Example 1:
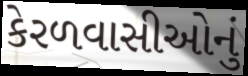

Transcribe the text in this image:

કેરળવાસીઓનું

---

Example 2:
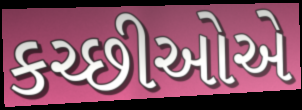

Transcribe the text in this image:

કચ્છીઓએ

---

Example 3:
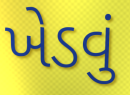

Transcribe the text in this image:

ખેડવું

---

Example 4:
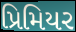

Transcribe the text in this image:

પ્રિમિયર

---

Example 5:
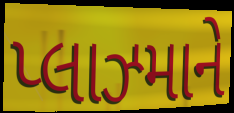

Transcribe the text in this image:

પ્લાઝ્માને